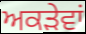
ਅਕੜੇਵਾਂ